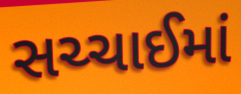
સચ્ચાઈમાં